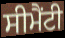
ਸੀਮੈਂਟੀ